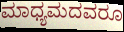
ಮಾಧ್ಯಮದವರೂ